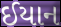
ઈયાન